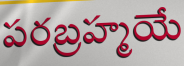
పరబ్రహ్మయే